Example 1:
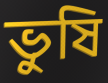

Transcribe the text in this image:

ভুষি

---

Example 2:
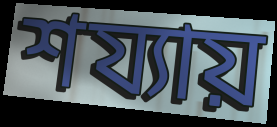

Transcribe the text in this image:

শয্যায়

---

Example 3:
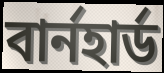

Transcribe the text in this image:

বার্নহার্ড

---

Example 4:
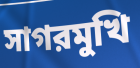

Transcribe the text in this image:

সাগরমুখি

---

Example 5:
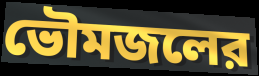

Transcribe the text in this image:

ভৌমজলের